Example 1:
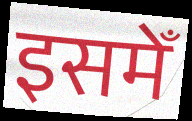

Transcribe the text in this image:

इसमेँ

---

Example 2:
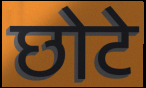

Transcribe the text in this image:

छोटे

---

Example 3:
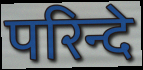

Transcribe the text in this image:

परिन्दे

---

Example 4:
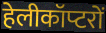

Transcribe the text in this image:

हेलीकॉप्‍टरों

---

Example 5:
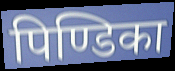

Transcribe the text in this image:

पिण्डिका